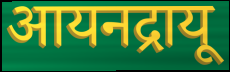
आयनद्रायू